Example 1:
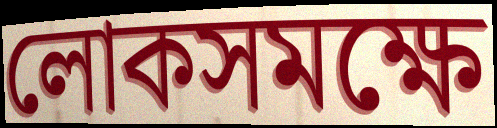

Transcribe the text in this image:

লোকসমক্ষে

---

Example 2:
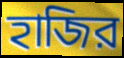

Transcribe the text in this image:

হাজির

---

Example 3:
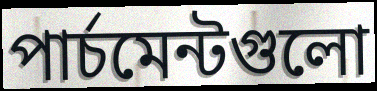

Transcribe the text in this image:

পার্চমেন্টগুলো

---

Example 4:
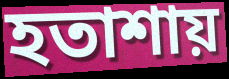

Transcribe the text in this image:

হতাশায়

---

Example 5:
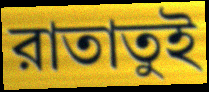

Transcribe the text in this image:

রাতাতুই